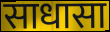
साधासा